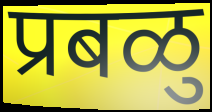
प्रबळु